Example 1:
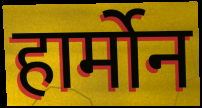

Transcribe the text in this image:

हार्मोन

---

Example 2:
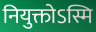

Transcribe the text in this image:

नियुक्तोऽस्मि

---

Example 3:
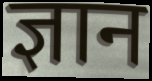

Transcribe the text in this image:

ज्ञान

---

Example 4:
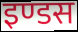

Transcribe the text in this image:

इण्डस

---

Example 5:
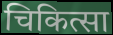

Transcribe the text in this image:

चिकित्सा